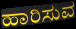
ಹಾರಿಸುವ